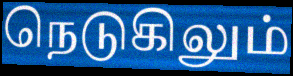
நெடுகிலும்